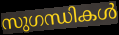
സുഗന്ധികൾ